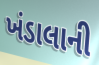
ખંડાલાની